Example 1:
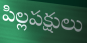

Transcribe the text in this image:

పిల్లపక్షులు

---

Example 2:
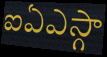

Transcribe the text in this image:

ఐఏఎస్గా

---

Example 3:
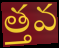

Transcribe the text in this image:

త్తవ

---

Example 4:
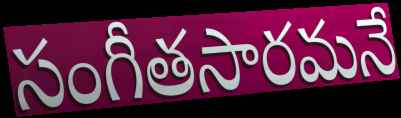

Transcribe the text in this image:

సంగీతసారమనే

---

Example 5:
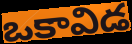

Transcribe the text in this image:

ఒకావిడ